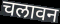
चलावन